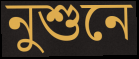
নুশুনে